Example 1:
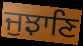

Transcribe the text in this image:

ਜੁਝਾਣਿ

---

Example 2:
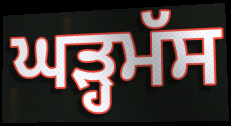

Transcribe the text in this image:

ਘੜ੍ਹਮੱਸ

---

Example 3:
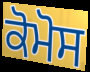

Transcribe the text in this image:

ਕੋਮੋਸ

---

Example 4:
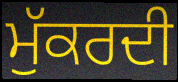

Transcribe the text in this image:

ਮੁੱਕਰਦੀ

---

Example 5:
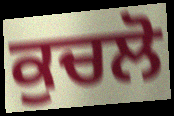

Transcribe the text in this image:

ਕੁਚਲੋ